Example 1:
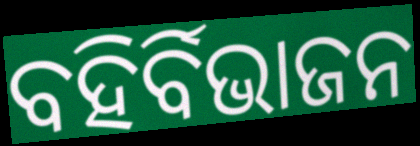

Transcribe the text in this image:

ବହିର୍ବିଭାଜନ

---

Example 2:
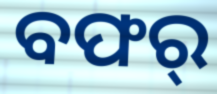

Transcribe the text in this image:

ବଫର୍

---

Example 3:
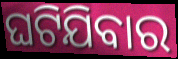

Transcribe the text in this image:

ଘଟିଯିବାର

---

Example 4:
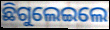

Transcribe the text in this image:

ଛିଗୁଲେଇଲେ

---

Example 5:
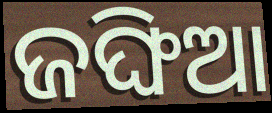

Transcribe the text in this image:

ଜଙ୍ଘିଆ